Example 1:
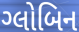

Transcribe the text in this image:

ગ્લોબિન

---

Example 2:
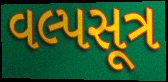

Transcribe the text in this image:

વલ્પસૂત્ર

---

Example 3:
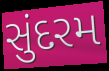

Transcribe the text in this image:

સુંદરમ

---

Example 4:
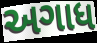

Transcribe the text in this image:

અગાધ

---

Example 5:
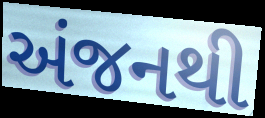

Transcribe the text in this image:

અંજનથી